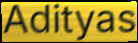
Adityas